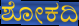
ಶೋಕದಿ